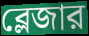
ব্লেজার